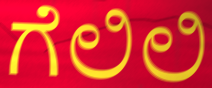
ಗೆಲಿಲಿ